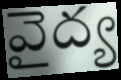
వైద్య